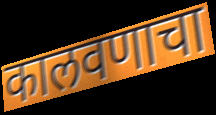
कालवणाचा